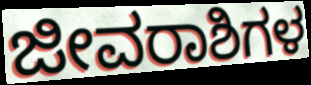
ಜೀವರಾಶಿಗಳ